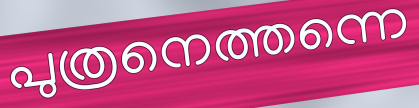
പുത്രനെത്തന്നെ